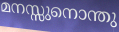
മനസ്സുനൊന്തു